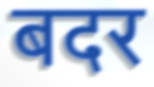
बदर